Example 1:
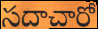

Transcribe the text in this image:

సదాచారో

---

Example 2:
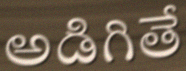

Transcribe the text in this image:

అడిగితే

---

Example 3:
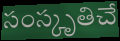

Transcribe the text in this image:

సంస్కృతిచే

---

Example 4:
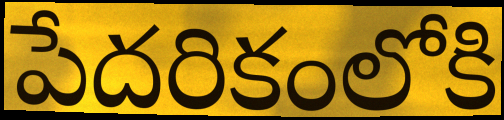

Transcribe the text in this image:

పేదరికంలోకి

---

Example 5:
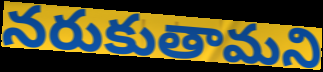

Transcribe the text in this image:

నరుకుతామని